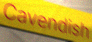
Cavendish